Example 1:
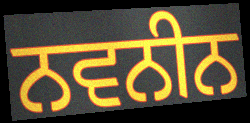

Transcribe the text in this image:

ਨਵਨੀਨ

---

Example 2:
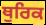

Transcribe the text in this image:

ਥੁਰਿਕ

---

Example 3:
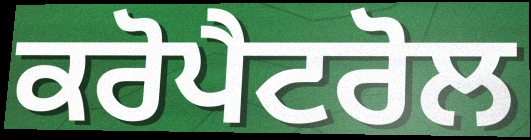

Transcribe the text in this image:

ਕਰੋਪੈਟਰੋਲ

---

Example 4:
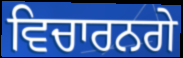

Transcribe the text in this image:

ਵਿਚਾਰਨਗੇ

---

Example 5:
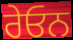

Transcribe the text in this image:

ਰੇਓਨ